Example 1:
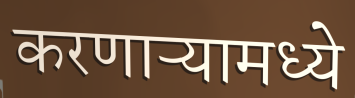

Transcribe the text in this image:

करणाऱ्यामध्ये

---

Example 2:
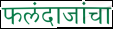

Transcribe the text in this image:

फलंदाजांचा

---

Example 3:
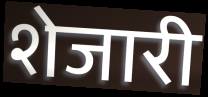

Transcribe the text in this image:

शेजारी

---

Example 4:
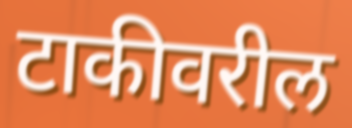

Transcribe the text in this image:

टाकीवरील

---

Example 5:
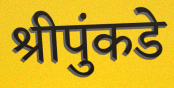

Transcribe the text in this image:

श्रीपुंकडे